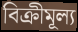
বিক্ৰীমূল্য